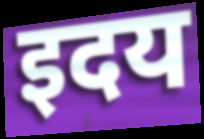
इदय